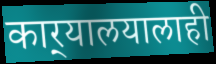
कार्यालयालाही